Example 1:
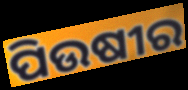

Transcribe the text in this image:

ପିଉଷୀର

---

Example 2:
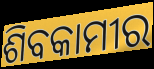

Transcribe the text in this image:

ଶିବକାମୀର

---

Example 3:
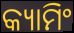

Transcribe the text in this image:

କ୍ୟାମିଂ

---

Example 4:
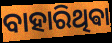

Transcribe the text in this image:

ବାହାରିଥିଵା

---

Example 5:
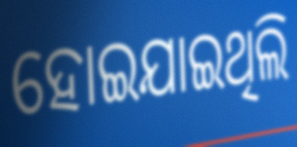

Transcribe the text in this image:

ହୋଇଯାଇଥିଲି